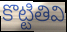
కొట్టితివి